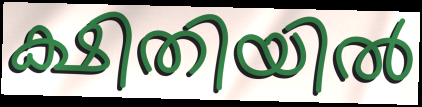
ക്ഷിതിയിൽ